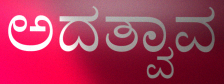
ಅದತ್ವಾವ